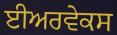
ਈਅਰਵੇਕਸ